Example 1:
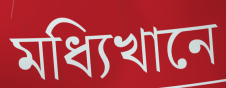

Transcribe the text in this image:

মধ্যিখানে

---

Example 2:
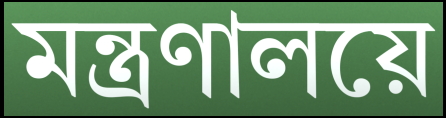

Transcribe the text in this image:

মন্ত্রণালয়ে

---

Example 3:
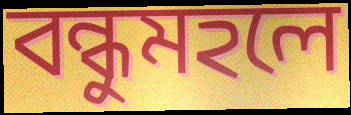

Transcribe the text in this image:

বন্ধুমহলে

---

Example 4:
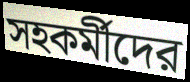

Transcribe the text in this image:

সহকর্মীদের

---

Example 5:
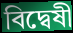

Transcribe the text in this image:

বিদ্বেষী